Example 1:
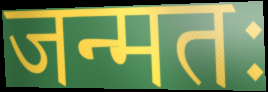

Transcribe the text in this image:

जन्मतः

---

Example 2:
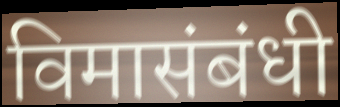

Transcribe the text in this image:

विमासंबंधी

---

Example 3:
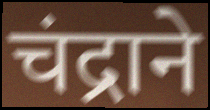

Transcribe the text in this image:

चंद्राने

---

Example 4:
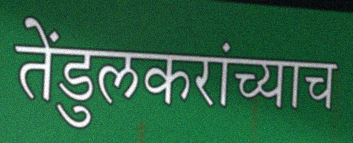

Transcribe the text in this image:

तेंडुलकरांच्याच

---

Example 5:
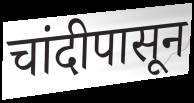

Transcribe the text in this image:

चांदीपासून